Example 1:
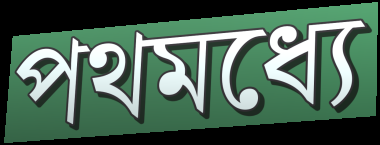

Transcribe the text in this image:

পথমধ্যে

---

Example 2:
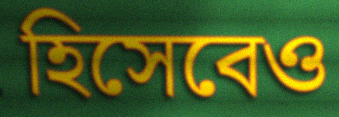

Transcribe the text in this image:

হিসেবেও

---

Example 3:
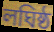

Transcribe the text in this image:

লঘিষ্ঠ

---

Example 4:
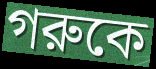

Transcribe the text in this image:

গরুকে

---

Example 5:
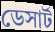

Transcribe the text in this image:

ডেসার্ট